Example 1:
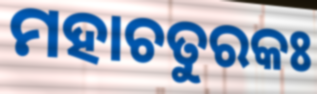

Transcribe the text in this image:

ମହାଚତୁରକଃ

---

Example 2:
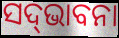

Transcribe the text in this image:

ସଦ୍‌ଭାବନା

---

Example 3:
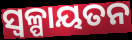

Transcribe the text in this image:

ସ୍ୱଳ୍ପାୟତନ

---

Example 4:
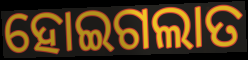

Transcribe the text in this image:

ହୋଇଗଲାତ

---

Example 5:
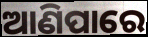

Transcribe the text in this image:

ଆଣିପାରେ